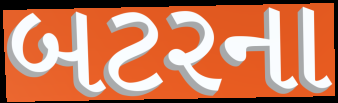
બટરના